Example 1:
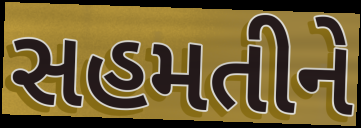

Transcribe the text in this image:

સહમતીને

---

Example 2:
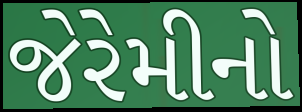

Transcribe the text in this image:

જેરેમીનો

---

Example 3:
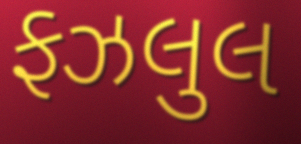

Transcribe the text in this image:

ફઝલુલ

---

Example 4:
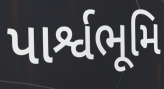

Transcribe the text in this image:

પાર્શ્વભૂમિ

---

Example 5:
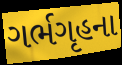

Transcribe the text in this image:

ગર્ભગૃહના